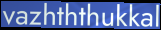
vazhththukkal